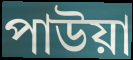
পাউয়া